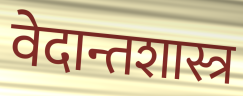
वेदान्तशास्त्र